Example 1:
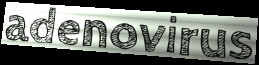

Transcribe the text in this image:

adenovirus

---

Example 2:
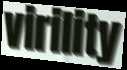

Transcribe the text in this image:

virility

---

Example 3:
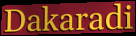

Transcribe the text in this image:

Dakaradi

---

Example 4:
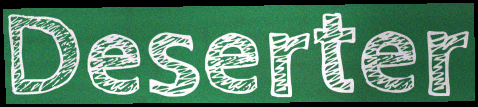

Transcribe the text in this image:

Deserter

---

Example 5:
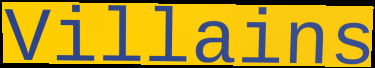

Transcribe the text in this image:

Villains